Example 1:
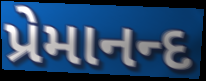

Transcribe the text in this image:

પ્રેમાનન્દ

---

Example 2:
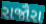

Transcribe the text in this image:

રાજૌરા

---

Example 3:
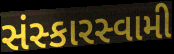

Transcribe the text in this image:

સંસ્કારસ્વામી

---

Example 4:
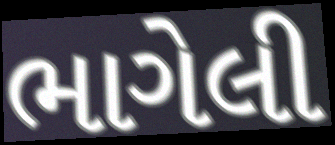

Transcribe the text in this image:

ભાગેલી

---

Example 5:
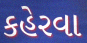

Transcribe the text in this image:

કહેરવા